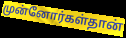
முன்னோர்கள்தான்